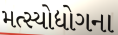
મત્સ્યોદ્યોગના